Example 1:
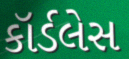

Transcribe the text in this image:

કૉર્ડલેસ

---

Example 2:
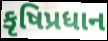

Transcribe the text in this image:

કૃષિપ્રધાન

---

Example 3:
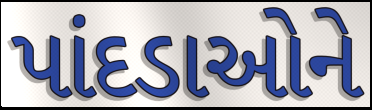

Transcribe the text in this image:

પાંદડાઓને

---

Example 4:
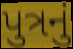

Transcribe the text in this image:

પુત્રનું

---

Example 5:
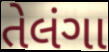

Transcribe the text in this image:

તેલંગા